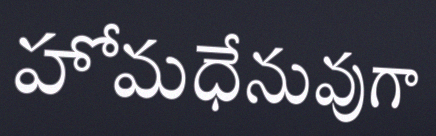
హోమధేనువుగా